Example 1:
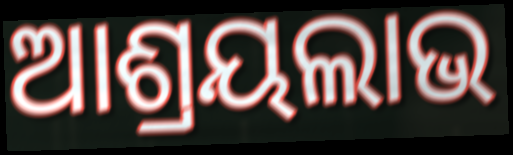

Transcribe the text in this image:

ଆଶ୍ରୟଲାଭ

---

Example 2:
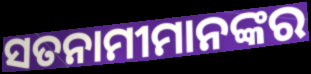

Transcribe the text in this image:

ସତନାମୀମାନଙ୍କର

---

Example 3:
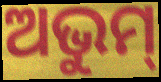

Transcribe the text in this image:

ଅଭୁମ୍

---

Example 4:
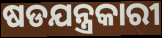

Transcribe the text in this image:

ଷଡଯନ୍ତ୍ରକାରୀ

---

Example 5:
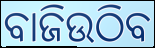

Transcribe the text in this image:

ବାଜିଉଠିବ